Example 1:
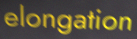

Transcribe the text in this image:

elongation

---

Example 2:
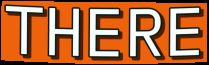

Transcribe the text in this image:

THERE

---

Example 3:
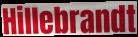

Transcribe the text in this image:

Hillebrandt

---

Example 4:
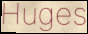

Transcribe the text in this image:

Huges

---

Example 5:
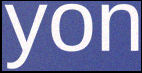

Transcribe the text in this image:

yon